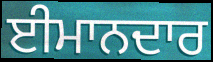
ਈਮਾਨਦਾਰ